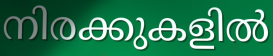
നിരക്കുകളിൽ